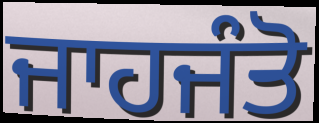
ਜਾਹਜੰਤੋ